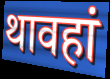
थावहां